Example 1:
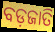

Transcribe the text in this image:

ବଡ଼ଜାତି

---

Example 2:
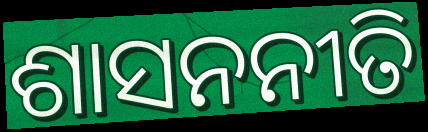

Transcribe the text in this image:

ଶାସନନୀତି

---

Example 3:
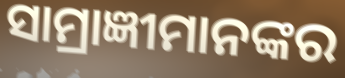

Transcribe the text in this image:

ସାମ୍ରାଜ୍ଞୀମାନଙ୍କର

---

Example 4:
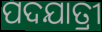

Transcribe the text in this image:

ପଦଯାତ୍ରୀ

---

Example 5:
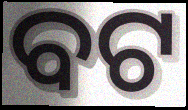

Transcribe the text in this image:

ବଟ